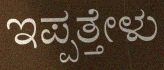
ಇಪ್ಪತ್ತೇಳು